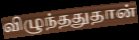
விழுந்ததுதான்